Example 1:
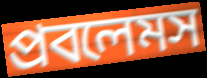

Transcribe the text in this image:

প্রবলেমস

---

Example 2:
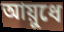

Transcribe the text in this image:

আয়ুধে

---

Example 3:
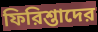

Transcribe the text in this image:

ফিরিশ্তাদের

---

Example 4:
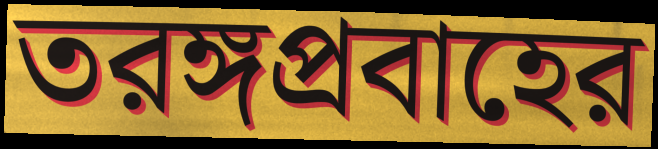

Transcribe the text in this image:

তরঙ্গপ্রবাহের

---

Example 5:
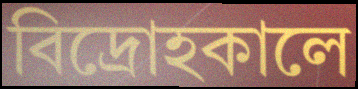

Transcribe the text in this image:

বিদ্রোহকালে